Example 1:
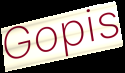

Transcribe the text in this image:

Gopis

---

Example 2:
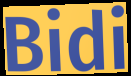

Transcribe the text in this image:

Bidi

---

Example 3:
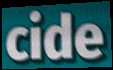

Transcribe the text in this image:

cide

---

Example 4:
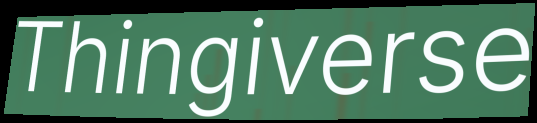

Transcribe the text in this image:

Thingiverse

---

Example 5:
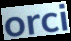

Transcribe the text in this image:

orci